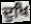
ਦੁਖਿ